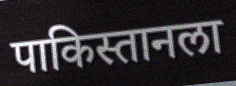
पाकिस्तानला